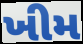
ખીમ